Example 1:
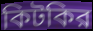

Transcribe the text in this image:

কিটকির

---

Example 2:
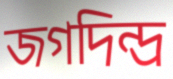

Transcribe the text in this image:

জগদিন্দ্র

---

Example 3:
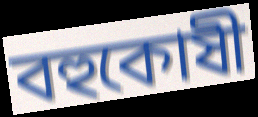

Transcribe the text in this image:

বহুকোষী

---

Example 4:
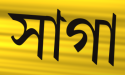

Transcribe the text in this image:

সাগা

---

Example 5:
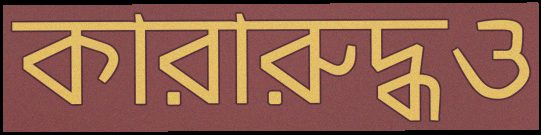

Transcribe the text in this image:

কারারুদ্ধও